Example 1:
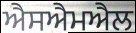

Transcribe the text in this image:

ਐਸਐਮਐਲ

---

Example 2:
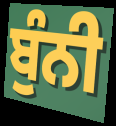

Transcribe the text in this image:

ਬੁੰਨੀ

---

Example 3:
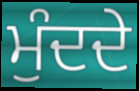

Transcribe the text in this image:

ਮੁੰਦਦੇ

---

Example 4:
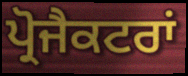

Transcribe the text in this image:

ਪ੍ਰੋਜੈਕਟਰਾਂ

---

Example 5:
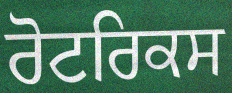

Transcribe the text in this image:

ਰੋਟਰਿਕਸ